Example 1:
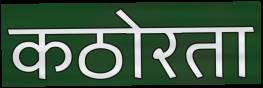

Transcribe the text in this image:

कठोरता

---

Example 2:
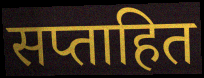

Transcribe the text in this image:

सप्ताहित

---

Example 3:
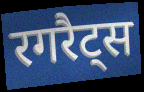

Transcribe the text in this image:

रगरैट्स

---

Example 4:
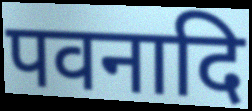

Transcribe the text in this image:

पवनादि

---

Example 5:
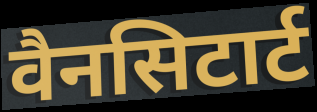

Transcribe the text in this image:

वैनसिटार्ट